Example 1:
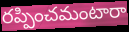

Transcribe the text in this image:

రప్పించమంటారా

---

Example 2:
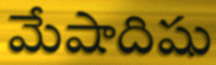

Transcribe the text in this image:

మేషాదిషు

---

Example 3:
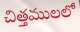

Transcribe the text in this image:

చిత్తములలో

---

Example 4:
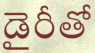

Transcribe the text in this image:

డైరీతో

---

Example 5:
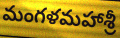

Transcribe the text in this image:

మంగళమహాశ్రీ